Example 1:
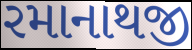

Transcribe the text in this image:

રમાનાથજી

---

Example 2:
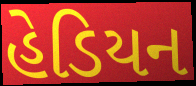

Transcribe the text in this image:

હેડિયન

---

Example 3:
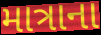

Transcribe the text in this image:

માત્રાના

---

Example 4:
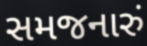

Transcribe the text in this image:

સમજનારું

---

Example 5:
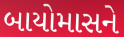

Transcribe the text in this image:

બાયોમાસને